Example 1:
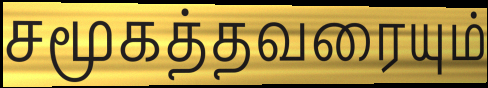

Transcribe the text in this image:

சமூகத்தவரையும்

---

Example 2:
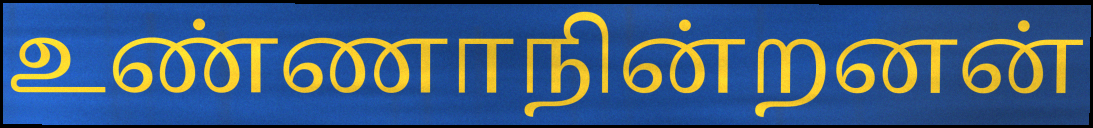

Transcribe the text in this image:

உண்ணாநின்றனன்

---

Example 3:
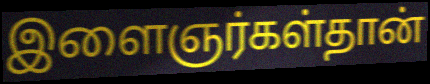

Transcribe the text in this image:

இளைஞர்கள்தான்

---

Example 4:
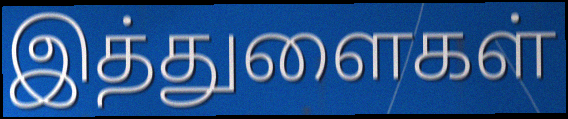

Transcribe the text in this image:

இத்துளைகள்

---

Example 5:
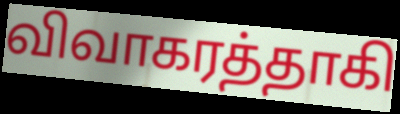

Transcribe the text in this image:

விவாகரத்தாகி